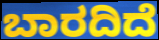
ಬಾರದಿದೆ